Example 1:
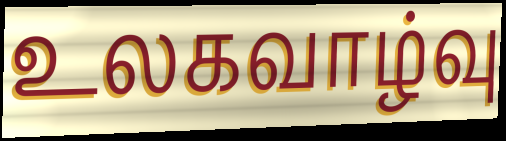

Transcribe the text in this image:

உலகவாழ்வு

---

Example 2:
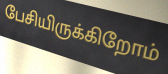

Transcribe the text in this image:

பேசியிருக்கிறோம்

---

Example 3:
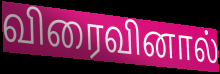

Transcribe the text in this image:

விரைவினால்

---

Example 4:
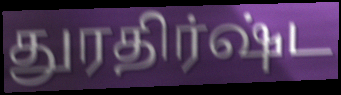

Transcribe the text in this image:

துரதிர்ஷ்ட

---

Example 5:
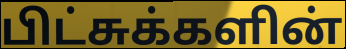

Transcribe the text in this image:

பிட்சுக்களின்